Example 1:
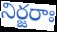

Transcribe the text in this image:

నిర్జరాః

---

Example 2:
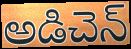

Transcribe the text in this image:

అడిచెన్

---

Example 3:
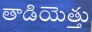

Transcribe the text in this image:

తాడియెత్తు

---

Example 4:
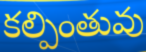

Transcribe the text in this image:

కల్పింతువు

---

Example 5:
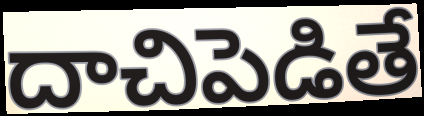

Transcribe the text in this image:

దాచిపెడితే